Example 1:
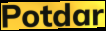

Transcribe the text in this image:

Potdar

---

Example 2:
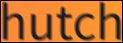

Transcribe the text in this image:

hutch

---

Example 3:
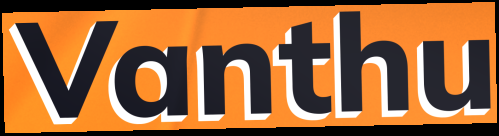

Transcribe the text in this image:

Vanthu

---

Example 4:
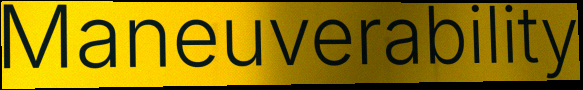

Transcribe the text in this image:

Maneuverability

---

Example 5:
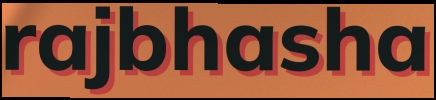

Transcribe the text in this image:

rajbhasha